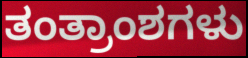
ತಂತ್ರಾಂಶಗಳು